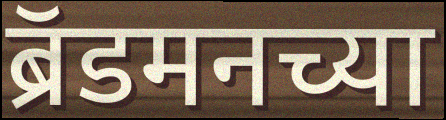
ब्रॅडमनच्या